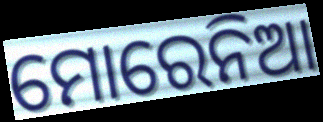
ମୋରେନିଆ